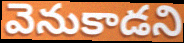
వెనుకాడని